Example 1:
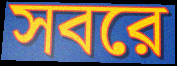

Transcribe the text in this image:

সবরে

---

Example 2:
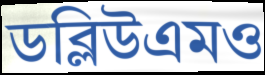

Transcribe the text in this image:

ডব্লিউএমও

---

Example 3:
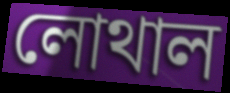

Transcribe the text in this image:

লোথাল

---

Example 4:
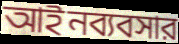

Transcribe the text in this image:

আইনব্যবসার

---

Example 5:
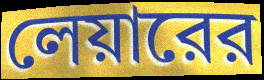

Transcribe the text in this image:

লেয়ারের